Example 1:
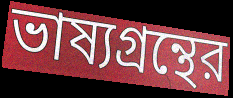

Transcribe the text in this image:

ভাষ্যগ্রন্থের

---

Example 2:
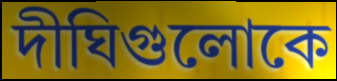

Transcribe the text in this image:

দীঘিগুলোকে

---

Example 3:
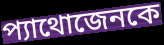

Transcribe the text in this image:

প্যাথোজেনকে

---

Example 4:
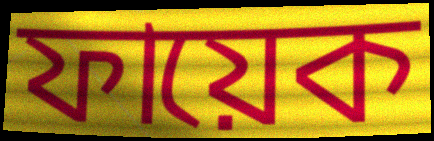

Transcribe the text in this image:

ফায়েক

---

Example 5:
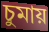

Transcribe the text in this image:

চুমায়